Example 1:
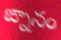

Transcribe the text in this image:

ఙ్నానం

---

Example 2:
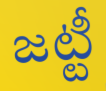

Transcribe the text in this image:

జట్టీ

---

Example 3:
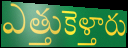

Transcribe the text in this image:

ఎత్తుకెళ్తారు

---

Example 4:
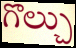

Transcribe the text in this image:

గొల్చు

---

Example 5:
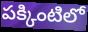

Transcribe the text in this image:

పక్కింటిలో